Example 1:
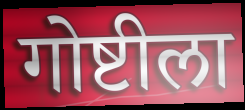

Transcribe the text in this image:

गोष्टीला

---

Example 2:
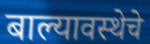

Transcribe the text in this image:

बाल्यावस्थेचे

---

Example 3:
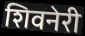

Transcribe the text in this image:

शिवनेरी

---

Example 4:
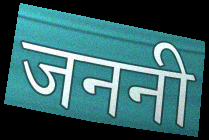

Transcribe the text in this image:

जननी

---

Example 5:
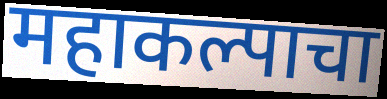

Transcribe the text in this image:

महाकल्पाचा